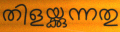
തിളയ്ക്കുന്നതു